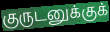
குருடனுக்குக்